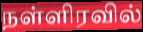
நள்ளிரவில்